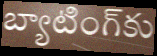
బ్యాటింగ్‌కు